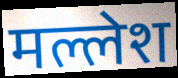
मल्लेश